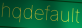
hqdefault